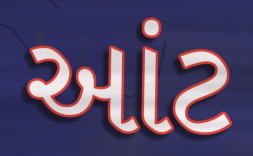
આંટ